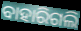
ବାହାରିଗଲି